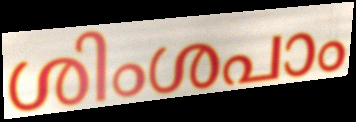
ശിംശപാം